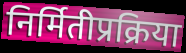
निर्मितीप्रक्रिया